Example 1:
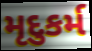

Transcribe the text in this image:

મૃદુકર્મ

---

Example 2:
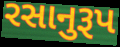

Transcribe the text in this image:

રસાનુરૂપ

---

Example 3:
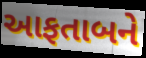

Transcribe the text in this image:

આફતાબને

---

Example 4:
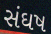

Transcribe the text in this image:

સંઘષ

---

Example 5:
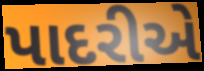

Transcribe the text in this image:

પાદરીએ